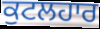
ਕੁਟਲਹਾਰ